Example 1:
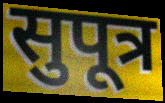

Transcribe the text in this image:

सुपूत्र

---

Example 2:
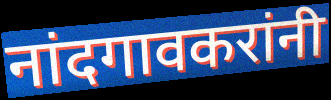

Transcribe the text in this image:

नांदगावकरांनी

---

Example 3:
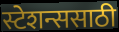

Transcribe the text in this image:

स्टेशन्ससाठी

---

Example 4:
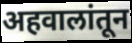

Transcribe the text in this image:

अहवालांतून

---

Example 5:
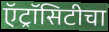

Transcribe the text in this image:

ऍट्रॉसिटीचा